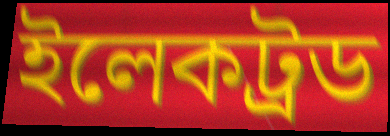
ইলেকট্রড